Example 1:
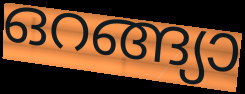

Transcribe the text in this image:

ഒറങ്ങ്യാ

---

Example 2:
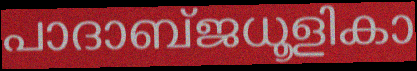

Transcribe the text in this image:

പാദാബ്ജധൂളികാ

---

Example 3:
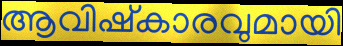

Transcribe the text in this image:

ആവിഷ്കാരവുമായി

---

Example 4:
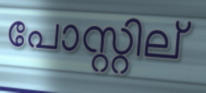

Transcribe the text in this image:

പോസ്റ്റില്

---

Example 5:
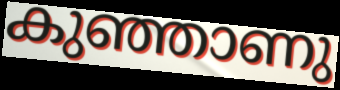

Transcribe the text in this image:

കുഞ്ഞാണു